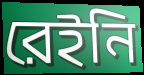
রেইনি